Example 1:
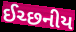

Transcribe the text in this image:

ઈચ્છનીય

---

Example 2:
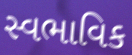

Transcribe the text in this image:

સ્વભાવિક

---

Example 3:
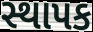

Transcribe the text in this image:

સ્થાપક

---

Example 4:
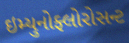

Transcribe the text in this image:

ઇમ્યુનોફ્લોરોસન્ટ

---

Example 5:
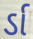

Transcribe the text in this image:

ર્ડા